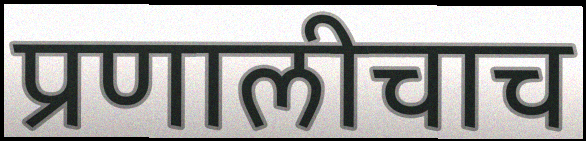
प्रणालीचाच